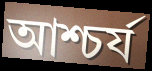
আশ্চৰ্য